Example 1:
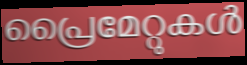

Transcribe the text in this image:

പ്രൈമേറ്റുകൾ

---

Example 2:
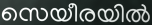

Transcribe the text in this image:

സെയീരയിൽ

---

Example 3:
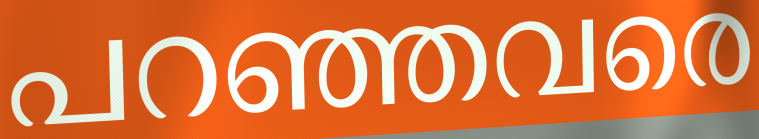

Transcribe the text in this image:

പറഞ്ഞവരെ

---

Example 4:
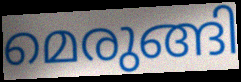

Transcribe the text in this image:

മെരുങ്ങി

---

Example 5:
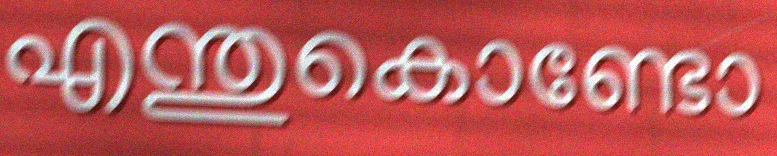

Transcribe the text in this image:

എന്തുകൊണ്ടോ